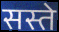
सस्‍ते